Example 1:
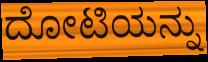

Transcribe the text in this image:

ದೋಟಿಯನ್ನು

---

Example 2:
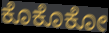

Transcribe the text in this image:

ಕೊಕೊಕೋ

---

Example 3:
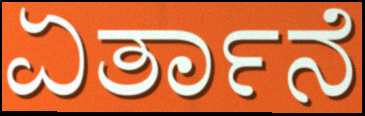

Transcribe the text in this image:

ಏರ್ತಾನೆ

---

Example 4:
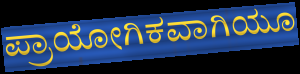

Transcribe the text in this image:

ಪ್ರಾಯೋಗಿಕವಾಗಿಯೂ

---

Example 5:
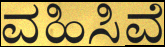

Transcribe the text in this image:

ವಹಿಸಿವೆ